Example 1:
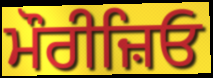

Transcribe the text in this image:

ਮੌਰੀਜ਼ਿਓ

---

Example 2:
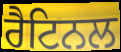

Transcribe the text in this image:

ਰੈਟਿਨਲ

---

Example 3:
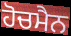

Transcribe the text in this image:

ਹੋਚਮੈਨ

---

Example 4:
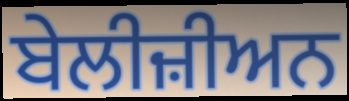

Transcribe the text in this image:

ਬੇਲੀਜ਼ੀਅਨ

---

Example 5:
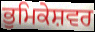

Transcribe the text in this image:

ਭੁਮਿਕੇਸ਼ਵਰ